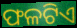
ଫଳଟିଏ